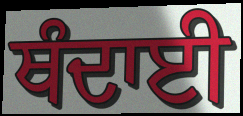
ਥੰਦਾਈ